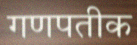
गणपतीक